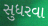
સુધરવા